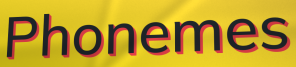
Phonemes